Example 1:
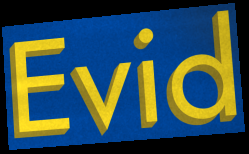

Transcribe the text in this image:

Evid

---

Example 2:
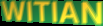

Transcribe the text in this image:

WITIAN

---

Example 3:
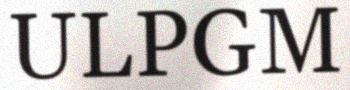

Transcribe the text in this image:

ULPGM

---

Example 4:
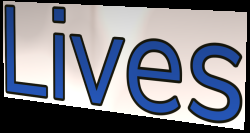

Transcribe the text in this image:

Lives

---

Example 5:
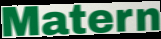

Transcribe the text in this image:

Matern